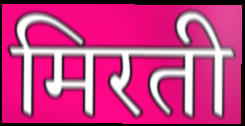
मिरती